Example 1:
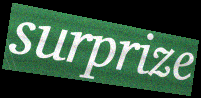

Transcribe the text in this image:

surprize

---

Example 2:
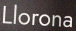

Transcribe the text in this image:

Llorona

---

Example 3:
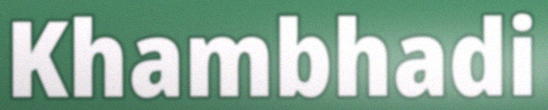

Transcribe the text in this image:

Khambhadi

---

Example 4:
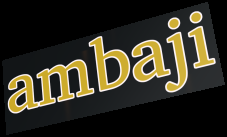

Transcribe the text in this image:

ambaji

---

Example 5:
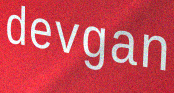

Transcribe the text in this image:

devgan